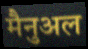
मैनुअल